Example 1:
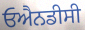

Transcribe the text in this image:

ਓਐਨਡੀਸੀ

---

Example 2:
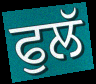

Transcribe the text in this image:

ਫੁਲੱ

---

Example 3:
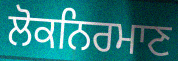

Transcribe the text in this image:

ਲੋਕਨਿਰਮਾਣ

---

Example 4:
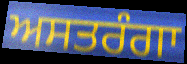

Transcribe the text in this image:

ਅਸਤਰੰਗਾ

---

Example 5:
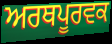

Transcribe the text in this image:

ਅਰਥਪੂਰਵਕ